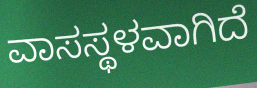
ವಾಸಸ್ಥಳವಾಗಿದೆ